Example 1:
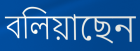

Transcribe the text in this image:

বলিয়াছেন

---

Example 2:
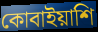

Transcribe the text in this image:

কোবাইয়াশি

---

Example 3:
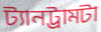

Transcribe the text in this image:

ট্যানট্রামটা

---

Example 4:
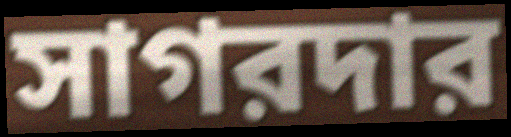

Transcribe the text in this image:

সাগরদার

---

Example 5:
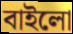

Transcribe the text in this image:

বাইলো